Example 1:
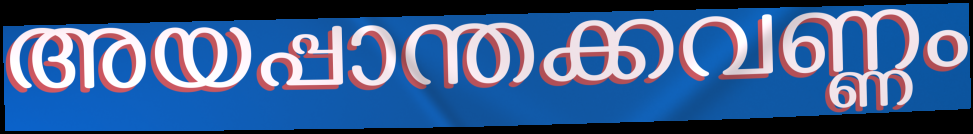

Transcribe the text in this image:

അയപ്പാന്തക്കവണ്ണം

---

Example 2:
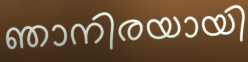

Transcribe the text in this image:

ഞാനിരയായി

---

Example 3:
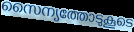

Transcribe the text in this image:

സൈന്യത്തോടുകൂടെ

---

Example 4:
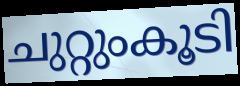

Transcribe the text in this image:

ചുറ്റുംകൂടി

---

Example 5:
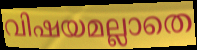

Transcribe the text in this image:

വിഷയമല്ലാതെ